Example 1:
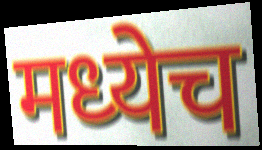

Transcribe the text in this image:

मध्‍येच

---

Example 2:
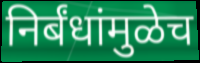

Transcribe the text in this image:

निर्बंधांमुळेच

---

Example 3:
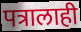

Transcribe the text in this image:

पत्रालाही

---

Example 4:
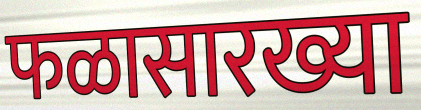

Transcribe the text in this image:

फळासारख्या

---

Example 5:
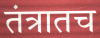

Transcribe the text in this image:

तंत्रातच